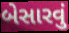
બેસારવું